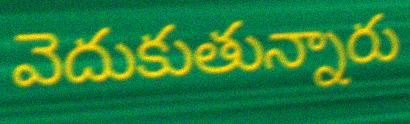
వెదుకుతున్నారు